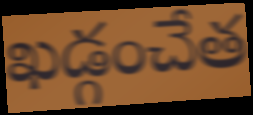
ఖడ్గంచేత